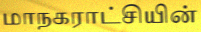
மாநகராட்சியின்